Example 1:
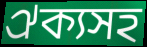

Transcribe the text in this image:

ঐক্যসহ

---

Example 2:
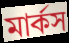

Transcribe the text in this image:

মার্কস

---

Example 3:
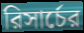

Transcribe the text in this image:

রিসার্চের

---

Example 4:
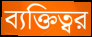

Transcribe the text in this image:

ব্যক্তিত্বর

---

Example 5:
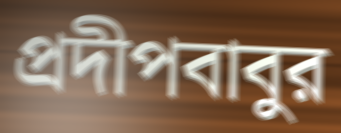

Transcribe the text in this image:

প্রদীপবাবুর